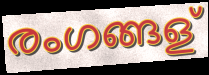
രംഗങ്ങള്